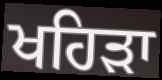
ਖਹਿਡ਼ਾ